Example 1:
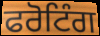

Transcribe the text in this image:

ਫਰੋਟਿੰਗ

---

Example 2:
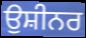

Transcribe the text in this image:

ਉਸ਼ੀਨਰ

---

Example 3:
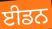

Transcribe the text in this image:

ਈਡਨ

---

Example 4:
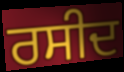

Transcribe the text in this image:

ਰਸੀਦ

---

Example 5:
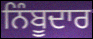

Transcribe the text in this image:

ਨਿੰਬੂਦਾਰ